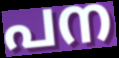
പന